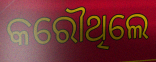
କରୌଥିଲେ